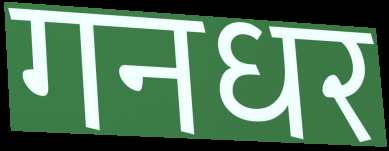
गनधर